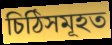
চিঠিসমূহত